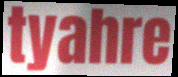
tyahre